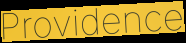
Providence